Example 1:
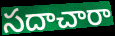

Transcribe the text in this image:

సదాచారా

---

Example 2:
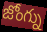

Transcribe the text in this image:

జోంగ్ను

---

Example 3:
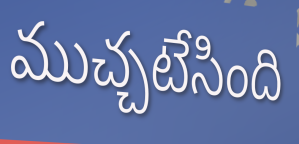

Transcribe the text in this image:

ముచ్చటేసింది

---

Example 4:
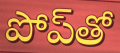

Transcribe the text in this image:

పోప్‌తో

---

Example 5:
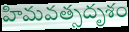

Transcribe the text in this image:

హిమవత్సదృశం